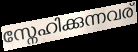
സ്നേഹിക്കുന്നവര്